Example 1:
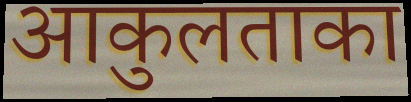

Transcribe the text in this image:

आकुलताका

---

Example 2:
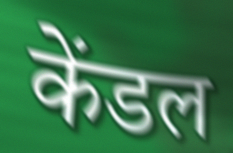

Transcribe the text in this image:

केंडल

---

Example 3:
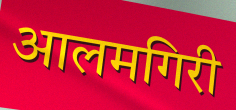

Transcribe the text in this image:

आलमगिरी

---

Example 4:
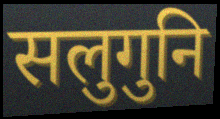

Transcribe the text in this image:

सलुगुनि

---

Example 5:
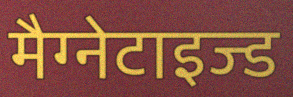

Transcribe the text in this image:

मैग्नेटाइज्ड